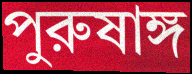
পুরুষাঙ্গ